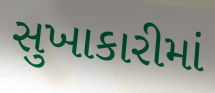
સુખાકારીમાં